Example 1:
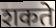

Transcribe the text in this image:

शकते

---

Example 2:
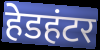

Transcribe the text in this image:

हेडहंटर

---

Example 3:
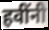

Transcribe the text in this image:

हवींनी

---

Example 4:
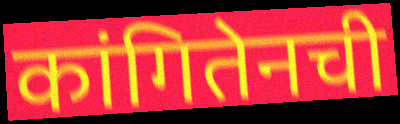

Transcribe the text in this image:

कांगितेनची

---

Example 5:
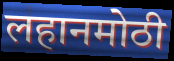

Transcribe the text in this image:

लहानमोठी